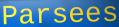
Parsees